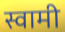
स्वामी